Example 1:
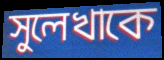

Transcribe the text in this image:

সুলেখাকে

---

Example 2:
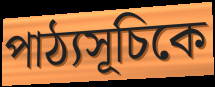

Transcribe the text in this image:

পাঠ্যসূচিকে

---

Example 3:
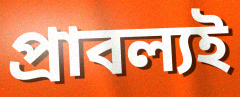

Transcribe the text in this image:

প্রাবল্যই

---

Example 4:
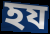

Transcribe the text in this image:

হয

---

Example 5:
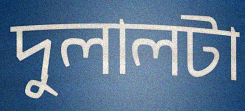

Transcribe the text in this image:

দুলালটা